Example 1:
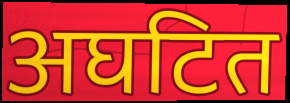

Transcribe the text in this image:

अघटित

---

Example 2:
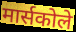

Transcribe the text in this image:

मार्सकोले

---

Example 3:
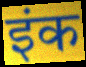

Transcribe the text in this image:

इंक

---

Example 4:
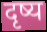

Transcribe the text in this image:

दृष्य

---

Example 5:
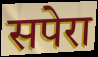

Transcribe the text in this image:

सपेरा